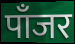
पाँजर